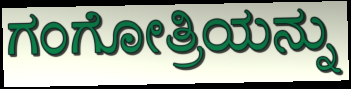
ಗಂಗೋತ್ರಿಯನ್ನು